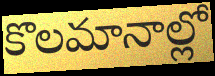
కొలమానాల్లో